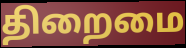
திறைமை